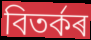
বিতৰ্কৰ